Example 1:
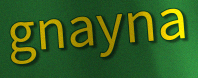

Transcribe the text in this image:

gnayna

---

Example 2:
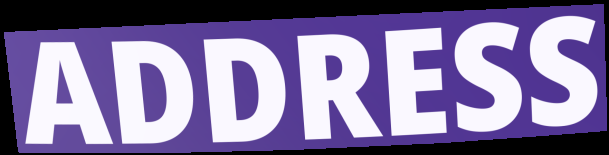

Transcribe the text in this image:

ADDRESS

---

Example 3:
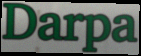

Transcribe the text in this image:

Darpa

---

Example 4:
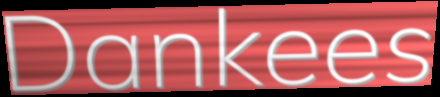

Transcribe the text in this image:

Dankees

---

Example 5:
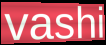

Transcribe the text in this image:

vashi